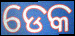
ଡେକ